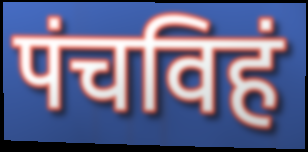
पंचविहं